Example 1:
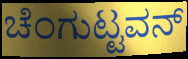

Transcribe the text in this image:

ಚೆಂಗುಟ್ಟವನ್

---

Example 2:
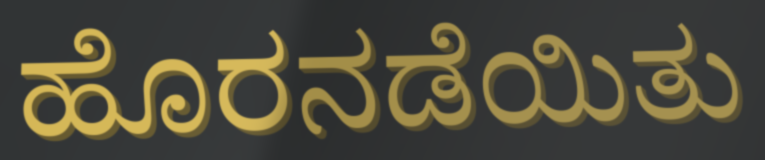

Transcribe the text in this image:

ಹೊರನಡೆಯಿತು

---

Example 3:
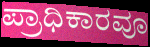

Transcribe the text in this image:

ಪ್ರಾಧಿಕಾರವೂ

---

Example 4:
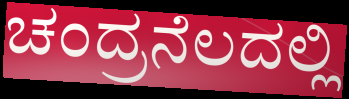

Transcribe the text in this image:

ಚಂದ್ರನೆಲದಲ್ಲಿ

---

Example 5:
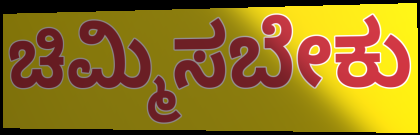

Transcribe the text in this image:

ಚಿಮ್ಮಿಸಬೇಕು